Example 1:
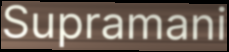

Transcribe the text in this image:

Supramani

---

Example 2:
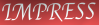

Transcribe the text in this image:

IMPRESS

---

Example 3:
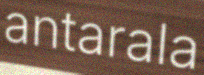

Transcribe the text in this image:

antarala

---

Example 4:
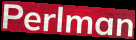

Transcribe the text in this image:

Perlman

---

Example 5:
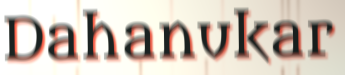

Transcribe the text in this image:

Dahanukar